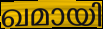
ഖമായി